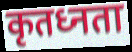
कृतध्नता